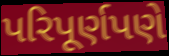
પરિપૂર્ણપણે